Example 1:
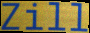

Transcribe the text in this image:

Zill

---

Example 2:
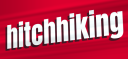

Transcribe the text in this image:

hitchhiking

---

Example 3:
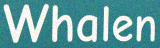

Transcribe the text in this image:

Whalen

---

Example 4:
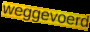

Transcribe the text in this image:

weggevoerd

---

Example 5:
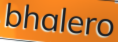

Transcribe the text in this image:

bhalero